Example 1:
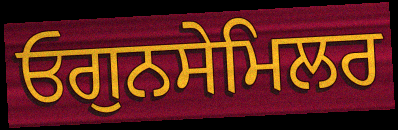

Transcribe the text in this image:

ਓਗੁਨਸੇਮਿਲਰ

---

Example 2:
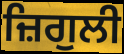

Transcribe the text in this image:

ਜ਼ਿਗੁਲੀ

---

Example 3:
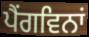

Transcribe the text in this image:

ਪੈਂਗਵਿਨਾਂ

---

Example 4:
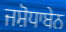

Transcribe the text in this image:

ਜਸ਼ੋਧਾਬੇਨ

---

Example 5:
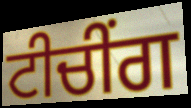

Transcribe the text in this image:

ਟੀਚੀਂਗ